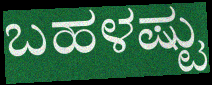
ಬಹಳಷ್ಟು